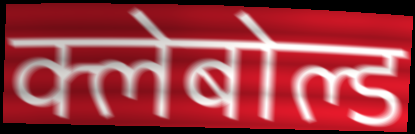
क्लेबोल्ड